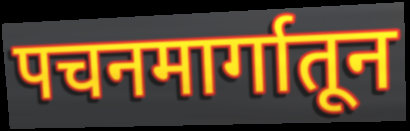
पचनमार्गातून